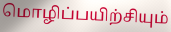
மொழிப்பயிற்சியும்